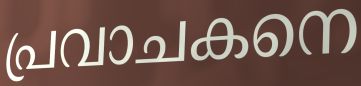
പ്രവാചകനെ